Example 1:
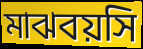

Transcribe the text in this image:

মাঝবয়সি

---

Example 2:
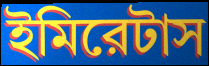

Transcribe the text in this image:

ইমিরেটাস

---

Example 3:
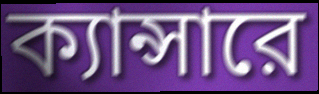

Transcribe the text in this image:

ক্যান্সারে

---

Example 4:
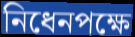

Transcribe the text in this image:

নিধেনপক্ষে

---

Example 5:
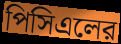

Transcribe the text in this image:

পিসিএলের